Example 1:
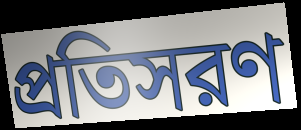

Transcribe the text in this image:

প্রতিসরণ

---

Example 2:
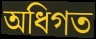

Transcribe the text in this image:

অধিগত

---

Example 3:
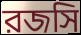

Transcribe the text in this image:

রজসি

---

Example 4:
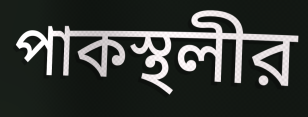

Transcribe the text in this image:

পাকস্থলীর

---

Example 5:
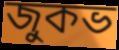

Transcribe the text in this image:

জুকভ